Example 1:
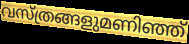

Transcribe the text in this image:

വസ്ത്രങ്ങളുമണിഞ്ഞ്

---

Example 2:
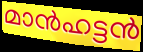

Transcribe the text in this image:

മാൻഹട്ടൻ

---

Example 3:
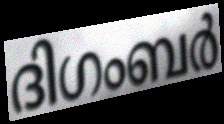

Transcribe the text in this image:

ദിഗംബർ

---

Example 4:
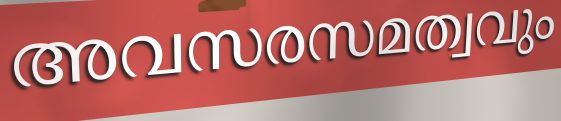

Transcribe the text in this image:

അവസരസമത്വവും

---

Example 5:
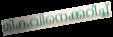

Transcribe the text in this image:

മികവിനെക്കുറിച്ച്